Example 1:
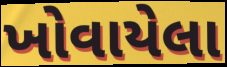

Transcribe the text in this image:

ખોવાયેલા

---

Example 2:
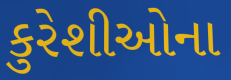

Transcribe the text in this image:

કુરેશીઓના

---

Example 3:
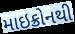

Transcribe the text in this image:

માઇક્રોનથી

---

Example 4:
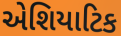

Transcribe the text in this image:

એશિયાટિક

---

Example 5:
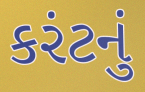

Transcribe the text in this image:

કરંટનું